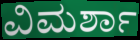
ವಿಮರ್ಶಾ